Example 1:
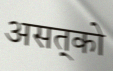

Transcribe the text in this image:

असत्‌को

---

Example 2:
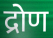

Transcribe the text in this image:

द्रोण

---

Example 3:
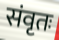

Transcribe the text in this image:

संवृतः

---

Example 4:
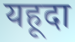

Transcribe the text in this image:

यहूदा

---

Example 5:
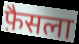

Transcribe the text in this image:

फ़ैसला